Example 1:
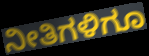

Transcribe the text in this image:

ನೀತಿಗಳಿಗೂ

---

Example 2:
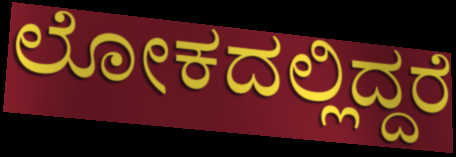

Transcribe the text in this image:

ಲೋಕದಲ್ಲಿದ್ದರೆ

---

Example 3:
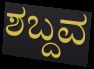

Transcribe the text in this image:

ಶಬ್ದವ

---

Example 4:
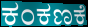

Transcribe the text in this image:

ಕಂಕಣಕೆ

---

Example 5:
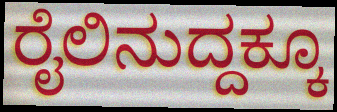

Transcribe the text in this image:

ರೈಲಿನುದ್ದಕ್ಕೂ